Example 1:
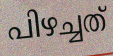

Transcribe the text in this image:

പിഴച്ചത്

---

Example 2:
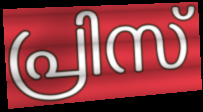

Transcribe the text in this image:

പ്രിസ്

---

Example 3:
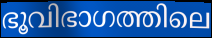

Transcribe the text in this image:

ഭൂവിഭാഗത്തിലെ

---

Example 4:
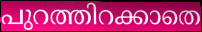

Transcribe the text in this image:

പുറത്തിറക്കാതെ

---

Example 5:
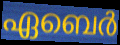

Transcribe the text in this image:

ഏബെർ